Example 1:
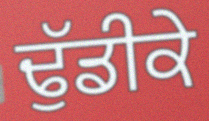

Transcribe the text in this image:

ਢੁੱਡੀਕੇ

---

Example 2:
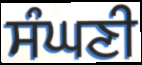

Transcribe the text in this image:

ਸੰਘਣੀ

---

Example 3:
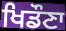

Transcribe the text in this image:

ਖਿਡੌਣਾ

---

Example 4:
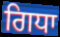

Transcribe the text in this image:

ਗਿਧਾ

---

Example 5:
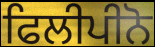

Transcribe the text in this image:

ਫਿਲੀਪੀਨੋ